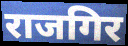
राजगिर